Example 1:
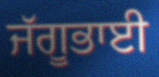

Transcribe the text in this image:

ਜੱਗੂਭਾਈ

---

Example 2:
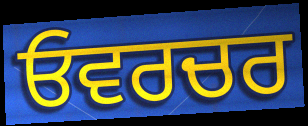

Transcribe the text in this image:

ਓਵਰਚਰ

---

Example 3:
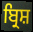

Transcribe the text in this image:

ਬ੍ਰਿਸ਼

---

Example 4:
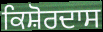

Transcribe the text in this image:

ਕਿਸ਼ੋਰਦਾਸ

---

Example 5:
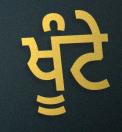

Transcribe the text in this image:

ਖੂੰਟੇ